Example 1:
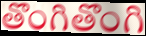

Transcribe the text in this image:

తొంగితొంగి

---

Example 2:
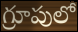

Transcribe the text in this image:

గ్రూపులో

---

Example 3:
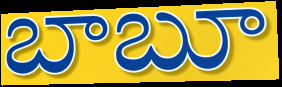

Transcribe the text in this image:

బాబూ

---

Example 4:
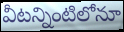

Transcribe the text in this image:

వీటన్నింటిలోనూ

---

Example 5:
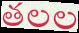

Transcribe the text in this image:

తలల